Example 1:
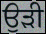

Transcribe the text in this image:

ਉਡ਼ੀ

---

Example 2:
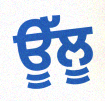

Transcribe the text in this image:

ਊੱਲੂ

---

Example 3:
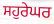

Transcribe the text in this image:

ਸਹੁਰੇਘਰ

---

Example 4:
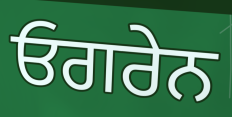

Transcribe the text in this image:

ਓਗਰੇਨ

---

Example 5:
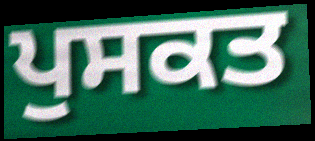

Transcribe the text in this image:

ਪੁਸਕਤ